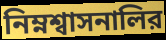
নিম্নশ্বাসনালির